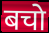
बचो